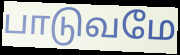
பாடுவமே